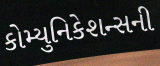
કોમ્યુનિકેશન્સની